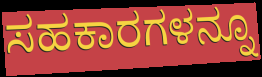
ಸಹಕಾರಗಳನ್ನೂ